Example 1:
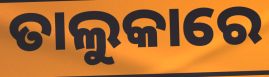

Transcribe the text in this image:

ତାଲୁକାରେ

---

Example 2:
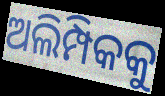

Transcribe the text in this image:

ଅଲିମ୍ପିକକୁ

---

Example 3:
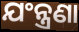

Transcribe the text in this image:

ଯଂନ୍ତ୍ରଣା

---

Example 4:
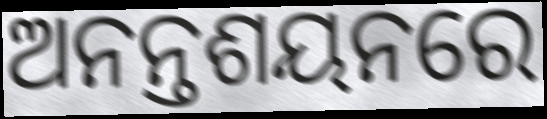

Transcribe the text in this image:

ଅନନ୍ତଶୟନରେ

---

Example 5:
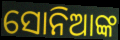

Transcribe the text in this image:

ସୋନିଆଙ୍କ